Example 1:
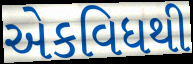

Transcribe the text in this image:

એકવિધથી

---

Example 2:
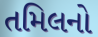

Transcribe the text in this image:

તમિલનો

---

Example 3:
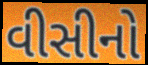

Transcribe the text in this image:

વીસીનો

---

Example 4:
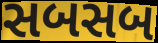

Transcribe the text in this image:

સબસબ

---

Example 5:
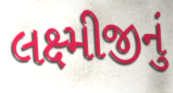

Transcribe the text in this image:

લક્ષ્મીજીનું